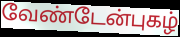
வேண்டேன்புகழ்